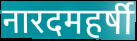
नारदमहर्षी